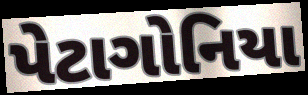
પેટાગોનિયા